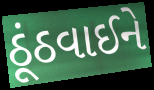
ઠૂંઠવાઈને